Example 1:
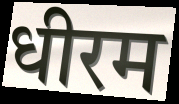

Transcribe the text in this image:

धीरम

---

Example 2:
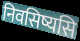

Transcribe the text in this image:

निवसिष्यसि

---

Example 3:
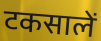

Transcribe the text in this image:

टकसालें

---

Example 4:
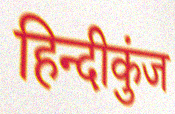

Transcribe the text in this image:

हिन्दीकुंज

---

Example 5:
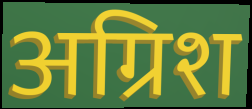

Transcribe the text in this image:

अग्रिश